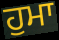
ਹੁਮਾ